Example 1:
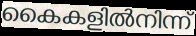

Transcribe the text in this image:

കൈകളിൽനിന്ന്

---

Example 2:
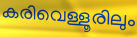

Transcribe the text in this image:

കരിവെള്ളൂരിലും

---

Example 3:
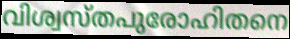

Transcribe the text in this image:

വിശ്വസ്തപുരോഹിതനെ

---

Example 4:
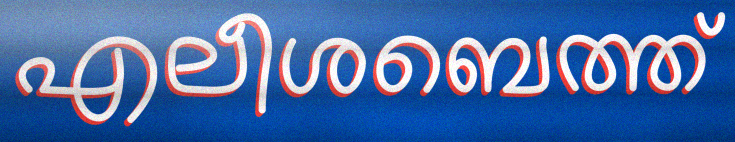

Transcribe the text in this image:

എലീശബെത്ത്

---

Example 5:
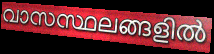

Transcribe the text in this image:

വാസസ്ഥലങ്ങളിൽ